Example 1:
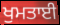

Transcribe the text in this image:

ਖੁਮਤਾਈ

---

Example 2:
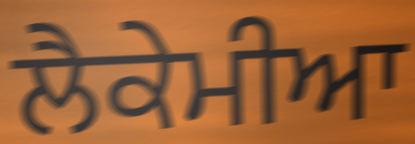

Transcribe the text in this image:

ਲੈਕੇਮੀਆ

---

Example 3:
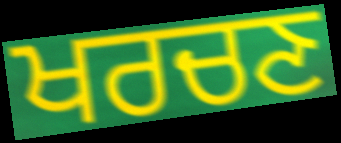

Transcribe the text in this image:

ਖਰਚਣ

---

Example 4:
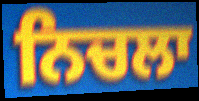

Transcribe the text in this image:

ਨਿਚਲਾ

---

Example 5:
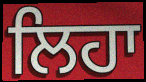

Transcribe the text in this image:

ਲਿਹਾ